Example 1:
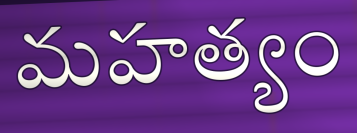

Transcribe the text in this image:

మహత్యం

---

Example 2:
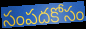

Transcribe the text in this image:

సంపదకోసం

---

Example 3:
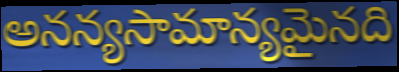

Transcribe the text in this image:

అనన్యసామాన్యమైనది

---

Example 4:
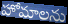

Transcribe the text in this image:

హోమాలను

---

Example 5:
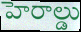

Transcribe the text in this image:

హెరాల్డు